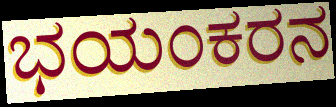
ಭಯಂಕರನ